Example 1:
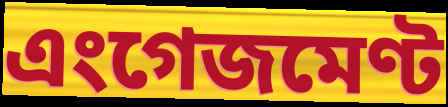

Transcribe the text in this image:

এংগেজমেণ্ট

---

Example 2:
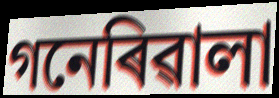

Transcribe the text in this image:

গনেৰিৱালা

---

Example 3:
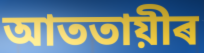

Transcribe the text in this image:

আততায়ীৰ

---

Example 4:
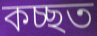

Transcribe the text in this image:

কচ্ছত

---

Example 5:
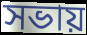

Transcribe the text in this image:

সভায়